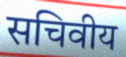
सचिवीय